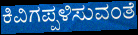
ಕಿವಿಗಪ್ಪಳಿಸುವಂತೆ